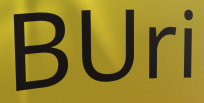
BUri